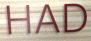
HAD